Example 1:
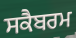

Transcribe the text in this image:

ਸਕੈਬਰਮ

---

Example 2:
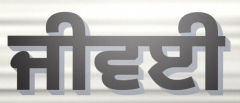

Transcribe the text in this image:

ਜੀਵਈ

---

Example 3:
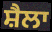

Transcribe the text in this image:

ਸ਼ੈਲਾ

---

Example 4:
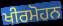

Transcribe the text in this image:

ਖੀਰਮੋਹਨ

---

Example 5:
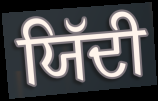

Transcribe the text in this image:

ਯਿੱਦੀ